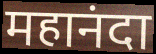
महानंदा